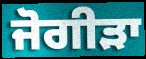
ਜੋਗੀੜਾ